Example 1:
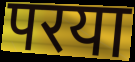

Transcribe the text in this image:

परया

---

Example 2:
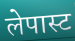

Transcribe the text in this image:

लेपास्ट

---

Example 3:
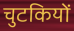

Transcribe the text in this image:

चुटकियों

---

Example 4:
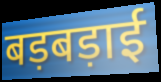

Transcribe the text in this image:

बड़बड़ाई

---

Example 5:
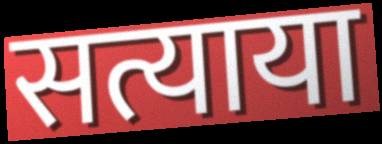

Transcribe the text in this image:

सत्याया